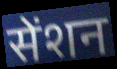
सेंशन